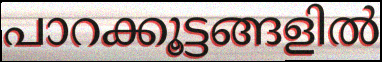
പാറക്കൂട്ടങ്ങളിൽ